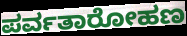
ಪರ್ವತಾರೋಹಣ